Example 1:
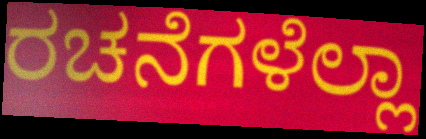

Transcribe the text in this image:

ರಚನೆಗಳೆಲ್ಲಾ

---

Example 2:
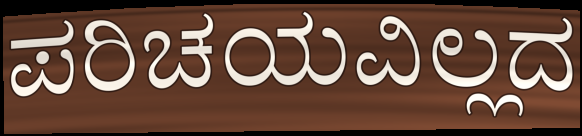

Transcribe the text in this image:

ಪರಿಚಯವಿಲ್ಲದ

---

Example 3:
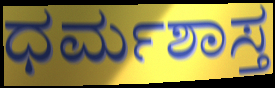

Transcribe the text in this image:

ಧರ್ಮಶಾಸ್ತ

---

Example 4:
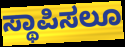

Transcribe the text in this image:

ಸ್ಥಾಪಿಸಲೂ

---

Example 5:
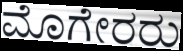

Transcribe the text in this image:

ಮೊಗೇರರು